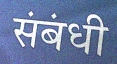
संबंधी